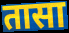
तासा